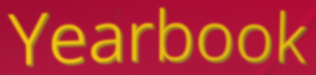
Yearbook